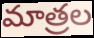
మాత్రల